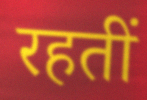
रहतीं